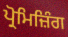
ਪ੍ਰੋਮਿਜ਼ਿੰਗ